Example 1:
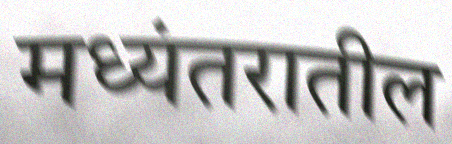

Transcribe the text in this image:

मध्यंतरातील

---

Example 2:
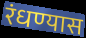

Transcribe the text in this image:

रंधण्यास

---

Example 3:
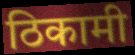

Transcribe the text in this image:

ठिकामी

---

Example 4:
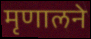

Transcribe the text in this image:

मृणालने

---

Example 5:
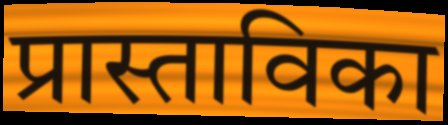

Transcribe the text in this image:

प्रास्ताविका